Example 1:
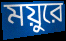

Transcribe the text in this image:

ময়ুরে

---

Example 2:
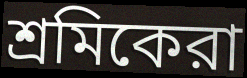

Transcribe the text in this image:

শ্রমিকেরা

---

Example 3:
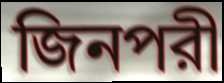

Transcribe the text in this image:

জিনপরী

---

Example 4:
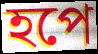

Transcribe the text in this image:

হপে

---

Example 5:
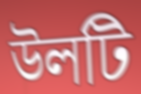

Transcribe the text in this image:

উলটি